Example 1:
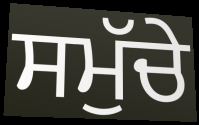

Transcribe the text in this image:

ਸਮੁੱਚੇ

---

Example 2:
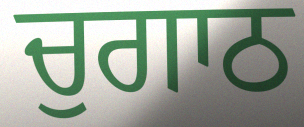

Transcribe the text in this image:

ਚੁਗਾਠ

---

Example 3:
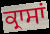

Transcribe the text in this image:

ਕ੍ਰਾਸਾਂ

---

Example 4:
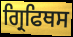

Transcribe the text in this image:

ਗ੍ਰਿਫਿਥਸ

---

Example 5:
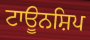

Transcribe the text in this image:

ਟਾਊਨਸ਼ਿਪ